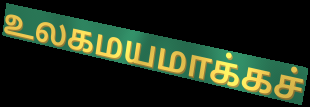
உலகமயமாக்கச்